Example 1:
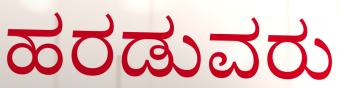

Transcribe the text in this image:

ಹರಡುವರು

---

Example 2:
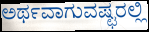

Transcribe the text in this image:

ಅರ್ಥವಾಗುವಷ್ಟರಲ್ಲಿ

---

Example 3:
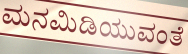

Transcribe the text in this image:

ಮನಮಿಡಿಯುವಂತೆ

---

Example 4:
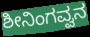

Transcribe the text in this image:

ಶೀನಿಂಗವ್ವನ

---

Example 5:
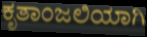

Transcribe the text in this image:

ಕೃತಾಂಜಲಿಯಾಗಿ